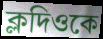
ক্লদিওকে